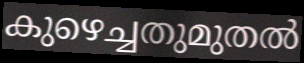
കുഴെച്ചതുമുതൽ